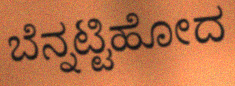
ಬೆನ್ನಟ್ಟಿಹೋದ